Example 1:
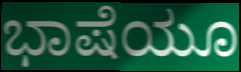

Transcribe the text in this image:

ಭಾಷೆಯೂ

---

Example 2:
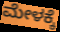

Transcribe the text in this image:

ಮೇಳಕ್ಕೆ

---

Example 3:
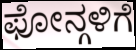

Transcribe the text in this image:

ಫೋನ್ಗಳಿಗೆ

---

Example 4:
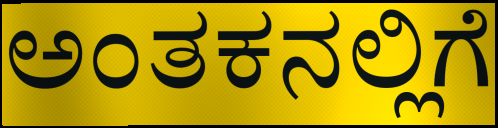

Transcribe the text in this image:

ಅಂತಕನಲ್ಲಿಗೆ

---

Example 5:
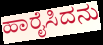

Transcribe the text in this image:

ಹಾರೈಸಿದನು